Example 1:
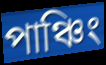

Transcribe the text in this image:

পাঞ্চিং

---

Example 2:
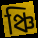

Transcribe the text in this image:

ঞ্চি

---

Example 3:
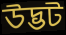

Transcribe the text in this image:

উদ্ভট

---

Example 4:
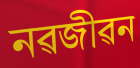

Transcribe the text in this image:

নৱজীৱন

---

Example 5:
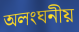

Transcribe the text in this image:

অলংঘনীয়